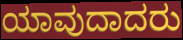
ಯಾವುದಾದರು